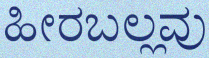
ಹೀರಬಲ್ಲವು